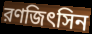
রণজিৎসিন